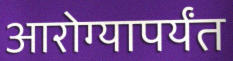
आरोग्यापर्यंत